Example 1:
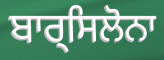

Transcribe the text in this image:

ਬਾਰ੍ਸਿਲੋਨਾ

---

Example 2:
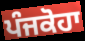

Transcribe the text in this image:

ਪੰਜਕੋਹਾ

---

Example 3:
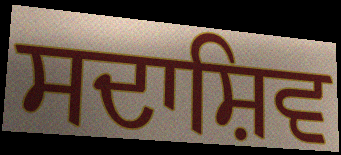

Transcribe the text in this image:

ਸਦਾਸ਼ਿਵ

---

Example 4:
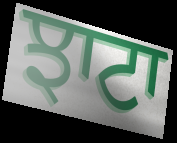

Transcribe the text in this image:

ਝਾਟਾ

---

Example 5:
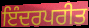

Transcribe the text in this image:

ਇੰਦਰਪਰੀਤ